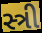
સ્ત્રી